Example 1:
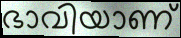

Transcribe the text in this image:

ഭാവിയാണ്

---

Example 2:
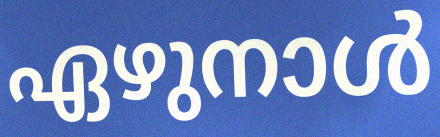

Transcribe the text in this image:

ഏഴുനാൾ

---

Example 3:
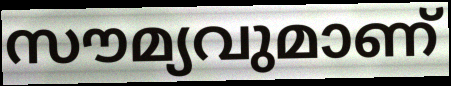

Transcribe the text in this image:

സൗമ്യവുമാണ്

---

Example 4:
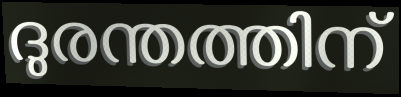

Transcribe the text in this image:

ദുരന്തത്തിന്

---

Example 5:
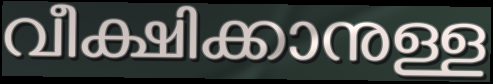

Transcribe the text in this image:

വീക്ഷിക്കാനുള്ള